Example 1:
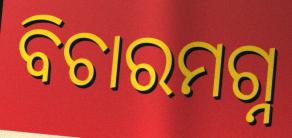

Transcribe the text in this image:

ବିଚାରମଗ୍ନ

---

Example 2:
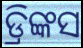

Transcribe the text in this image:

ଡ୍ରିଙ୍କସ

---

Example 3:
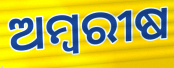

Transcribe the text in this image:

ଅମ୍ବରୀଷ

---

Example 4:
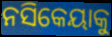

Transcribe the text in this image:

ନସିକେୟାକୁ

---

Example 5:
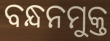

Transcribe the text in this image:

ବନ୍ଧନମୁକ୍ତ